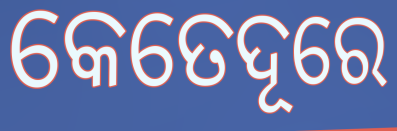
କେତେଦୂରେ